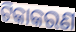
ଟିକାକରଣ